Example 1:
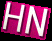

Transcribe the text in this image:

HN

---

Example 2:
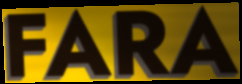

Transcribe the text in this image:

FARA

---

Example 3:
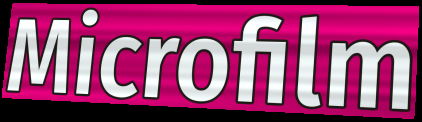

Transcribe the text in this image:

Microfilm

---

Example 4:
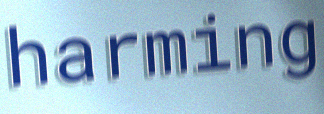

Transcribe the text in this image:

harming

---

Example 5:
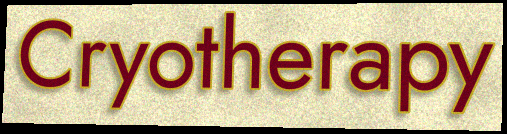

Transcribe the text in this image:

Cryotherapy